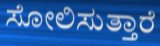
ಸೋಲಿಸುತ್ತಾರೆ